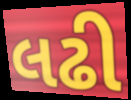
લઢી